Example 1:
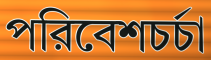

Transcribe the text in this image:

পরিবেশচর্চা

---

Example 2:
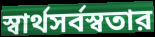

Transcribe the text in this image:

স্বার্থসর্বস্বতার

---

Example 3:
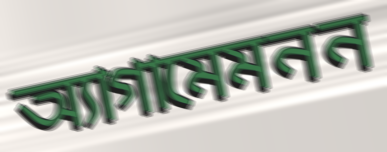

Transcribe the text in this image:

অ্যাগামেমনন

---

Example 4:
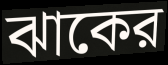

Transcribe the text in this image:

ঝাকের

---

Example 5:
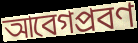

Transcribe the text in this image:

আবেগপ্রবণ